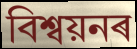
বিশ্বয়নৰ